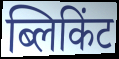
ब्लिकिंट